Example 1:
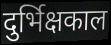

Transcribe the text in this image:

दुर्भिक्षकाल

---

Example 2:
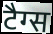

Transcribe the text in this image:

टैग्स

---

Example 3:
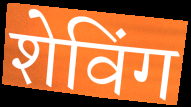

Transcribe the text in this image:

शेविंग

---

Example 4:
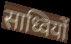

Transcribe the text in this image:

साध्वियों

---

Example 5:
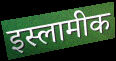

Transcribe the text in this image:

इस्लामीक